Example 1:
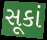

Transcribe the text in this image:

સૂકાં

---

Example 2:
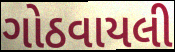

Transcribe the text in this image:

ગોઠવાયલી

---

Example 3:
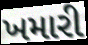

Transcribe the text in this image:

ખમારી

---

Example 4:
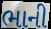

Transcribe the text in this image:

ભાની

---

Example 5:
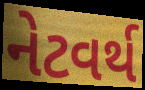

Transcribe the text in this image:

નેટવર્થ